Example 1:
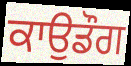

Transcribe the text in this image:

ਕਾਉਡੌਗ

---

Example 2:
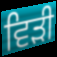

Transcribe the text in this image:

ਵਿੜੀ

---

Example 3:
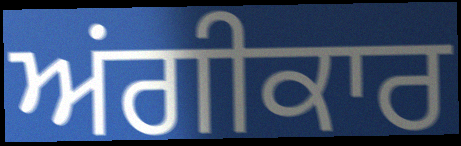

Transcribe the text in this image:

ਅਂਗੀਕਾਰ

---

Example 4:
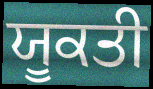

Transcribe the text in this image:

ਯੂਕਤੀ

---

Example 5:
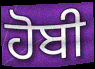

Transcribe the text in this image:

ਹੋਬੀ